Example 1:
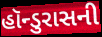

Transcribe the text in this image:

હૉન્ડુરાસની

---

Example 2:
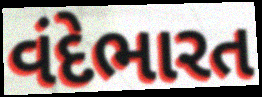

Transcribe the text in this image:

વંદેભારત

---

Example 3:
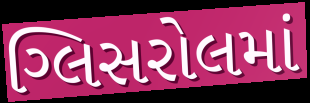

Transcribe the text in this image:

ગ્લિસરોલમાં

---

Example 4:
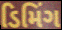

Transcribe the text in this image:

ડિમિંગ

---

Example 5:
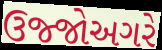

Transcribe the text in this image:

ઉજ્જોઅગરે